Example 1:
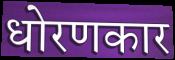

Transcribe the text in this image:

धोरणकार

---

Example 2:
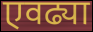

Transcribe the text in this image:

एवढ्या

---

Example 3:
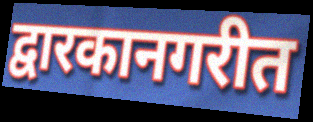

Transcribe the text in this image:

द्वारकानगरीत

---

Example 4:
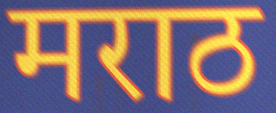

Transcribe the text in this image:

मराठ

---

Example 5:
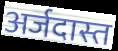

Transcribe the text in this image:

अर्जदास्त